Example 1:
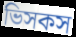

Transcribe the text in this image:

ভিসকস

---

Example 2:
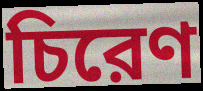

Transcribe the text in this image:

চিরেণ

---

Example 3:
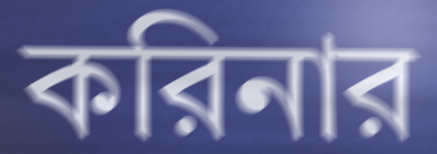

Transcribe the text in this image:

করিনার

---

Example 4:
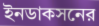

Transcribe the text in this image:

ইনডাকসনের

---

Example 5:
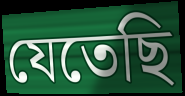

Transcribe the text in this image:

যেতেছি